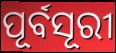
ପୂର୍ବସୂରୀ